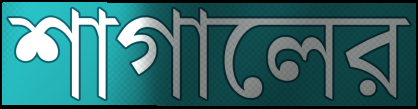
শাগালের